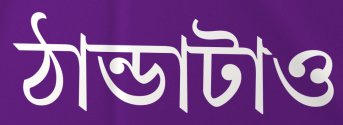
ঠান্ডাটাও